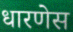
धारणेस